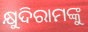
କ୍ଷୁଦିରାମଙ୍କୁ